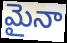
మైనా